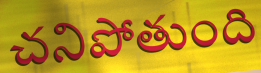
చనిపోతుంది